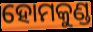
ହୋମକୁଣ୍ଡ